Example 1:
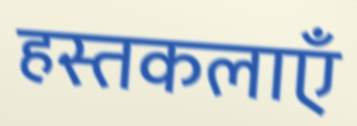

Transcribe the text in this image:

हस्तकलाएँ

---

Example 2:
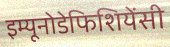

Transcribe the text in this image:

इम्यूनोडेफिशियेंसी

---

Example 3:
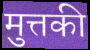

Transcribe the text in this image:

मुत्तकी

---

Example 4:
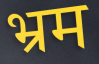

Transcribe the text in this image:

भ्रम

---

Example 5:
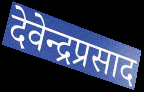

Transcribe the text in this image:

देवेन्द्रप्रसाद